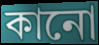
কানো